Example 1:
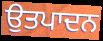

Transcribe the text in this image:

ਉਤਪਾਦਨ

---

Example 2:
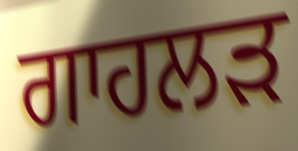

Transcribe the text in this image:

ਗਾਹਲੜ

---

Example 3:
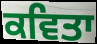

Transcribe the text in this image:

ਕਵਿਤਾ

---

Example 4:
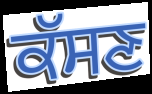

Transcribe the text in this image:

ਕੱਸਣ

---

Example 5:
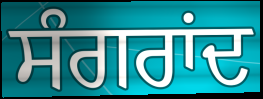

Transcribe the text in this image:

ਸੰਗਰਾਂਦ